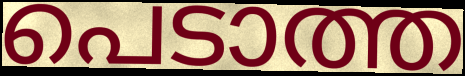
പെടാത്ത